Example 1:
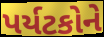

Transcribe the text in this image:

પર્યટકોને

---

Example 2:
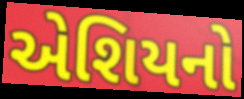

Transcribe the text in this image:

એશિયનો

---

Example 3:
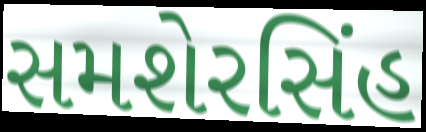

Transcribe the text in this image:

સમશેરસિંહ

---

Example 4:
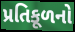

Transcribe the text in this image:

પ્રતિકૂળનો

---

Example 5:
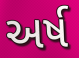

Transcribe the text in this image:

અર્ષ